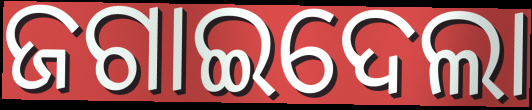
ଜଗାଇଦେଲା